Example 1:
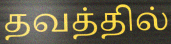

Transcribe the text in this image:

தவத்தில்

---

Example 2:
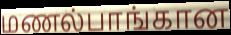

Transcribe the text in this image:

மணல்பாங்கான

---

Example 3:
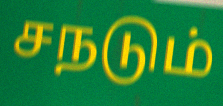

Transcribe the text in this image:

சநடும்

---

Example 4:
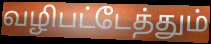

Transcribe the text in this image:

வழிபட்டேத்தும்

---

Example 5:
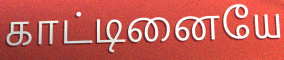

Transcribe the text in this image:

காட்டினையே